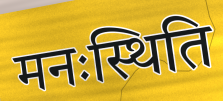
मनःस्थिति